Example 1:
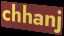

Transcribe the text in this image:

chhanj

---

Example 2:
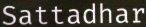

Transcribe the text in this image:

Sattadhar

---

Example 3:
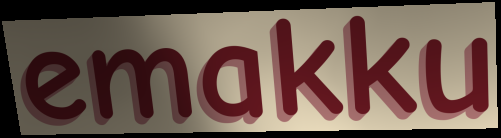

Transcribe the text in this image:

emakku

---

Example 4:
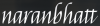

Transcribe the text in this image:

naranbhatt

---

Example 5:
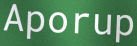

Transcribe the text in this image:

Aporup